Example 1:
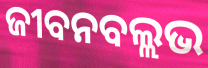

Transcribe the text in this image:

ଜୀବନବଲ୍ଲଭ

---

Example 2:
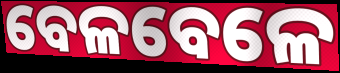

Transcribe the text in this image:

ବେଳବେଳେ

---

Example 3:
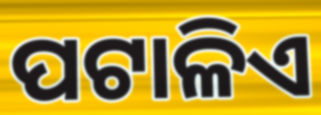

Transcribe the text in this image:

ପଟାଳିଏ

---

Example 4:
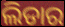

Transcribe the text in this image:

ଲିଡାର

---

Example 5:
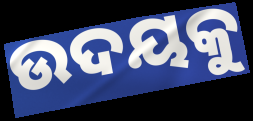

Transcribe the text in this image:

ଉଦୟକୁ